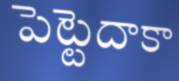
పెట్టెదాకా